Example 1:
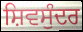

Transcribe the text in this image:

ਸ਼ਿਵਸੁੰਦਰ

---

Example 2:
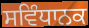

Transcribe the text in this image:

ਸਵਿੰਧਾਨਕ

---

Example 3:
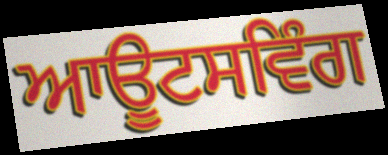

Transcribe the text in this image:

ਆਊਟਸਵਿੰਗ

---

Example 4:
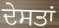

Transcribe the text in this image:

ਦੇਸਤਾਂ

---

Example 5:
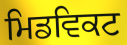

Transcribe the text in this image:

ਮਿਡਵਿਕਟ